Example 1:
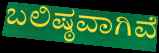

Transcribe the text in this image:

ಬಲಿಷ್ಠವಾಗಿವೆ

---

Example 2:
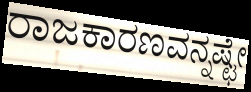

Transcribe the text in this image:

ರಾಜಕಾರಣವನ್ನಷ್ಟೇ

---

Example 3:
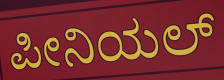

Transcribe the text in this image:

ಪೀನಿಯಲ್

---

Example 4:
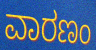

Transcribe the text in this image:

ವಾರಣಂ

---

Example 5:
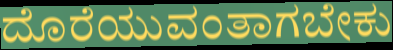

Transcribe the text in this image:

ದೊರೆಯುವಂತಾಗಬೇಕು